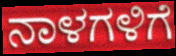
ನಾಳಗಳಿಗೆ